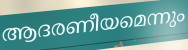
ആദരണീയമെന്നും